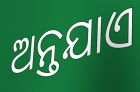
ଅନ୍ତଯାଏ